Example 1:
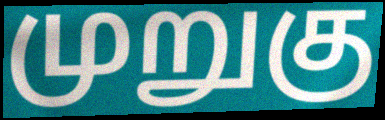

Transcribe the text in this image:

முறுகு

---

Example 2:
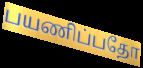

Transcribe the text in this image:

பயணிப்பதோ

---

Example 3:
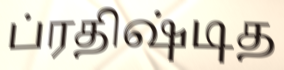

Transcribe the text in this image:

ப்ரதிஷ்டித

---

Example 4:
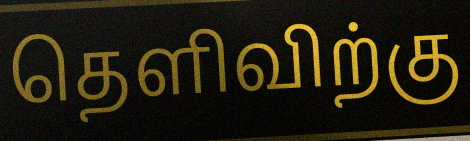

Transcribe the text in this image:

தெளிவிற்கு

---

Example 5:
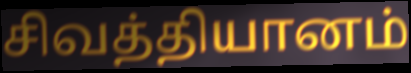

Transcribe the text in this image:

சிவத்தியானம்